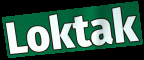
Loktak